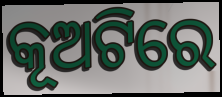
କୂଅଟିରେ